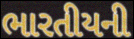
ભારતીયની